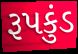
રૂપકુંડ